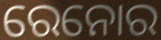
ରେନୋର